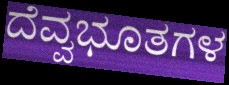
ದೆವ್ವಭೂತಗಳ